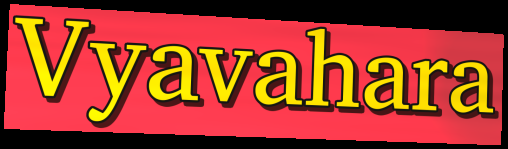
Vyavahara